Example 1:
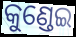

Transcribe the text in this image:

କୁଣ୍ଡେଇ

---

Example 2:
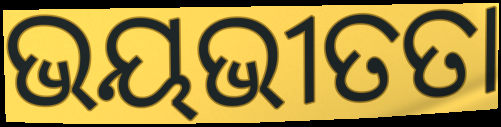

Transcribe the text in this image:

ଭୟଭୀତତା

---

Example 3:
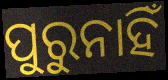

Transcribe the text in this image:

ପୁରୁନାହିଁ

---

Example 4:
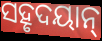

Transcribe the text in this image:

ସହୃଦୟାନ୍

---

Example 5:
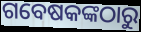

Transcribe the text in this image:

ଗବେଷକଙ୍କଠାରୁ